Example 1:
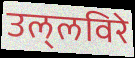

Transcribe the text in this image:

उल्लविरे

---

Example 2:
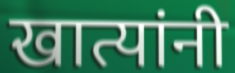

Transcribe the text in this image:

खात्यांनी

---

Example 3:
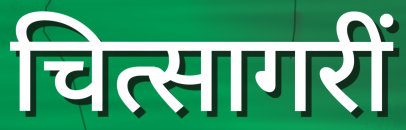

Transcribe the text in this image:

चित्सागरीं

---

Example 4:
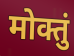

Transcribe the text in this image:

मोक्तुं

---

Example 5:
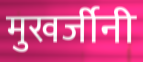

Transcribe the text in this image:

मुखर्जीनी